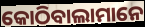
କୋଠିବାଲାମାନେ